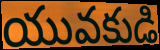
యువకుడి